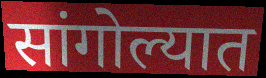
सांगोल्यात